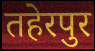
तहेरपुर